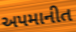
અપમાનીત